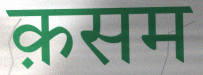
क़सम